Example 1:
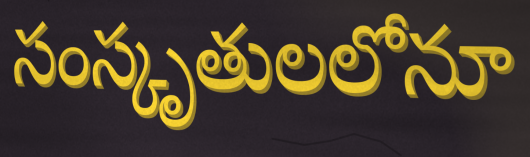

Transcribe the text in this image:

సంస్కృతులలోనూ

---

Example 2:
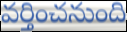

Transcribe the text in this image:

వర్తించనుంది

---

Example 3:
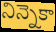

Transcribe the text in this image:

నిన్నెకా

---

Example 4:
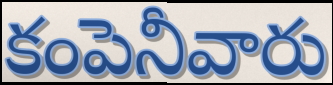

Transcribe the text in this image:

కంపెనీవారు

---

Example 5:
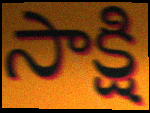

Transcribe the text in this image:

సాక్షి